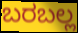
ಬರಬಲ್ಲ